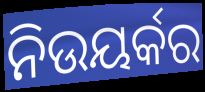
ନିଉୟର୍କର